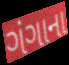
ગંગાના